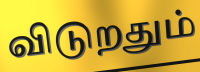
விடுறதும்